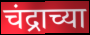
चंद्राच्या